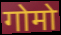
गोमो